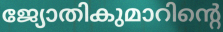
ജ്യോതികുമാറിന്റെ